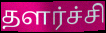
தளர்ச்சி